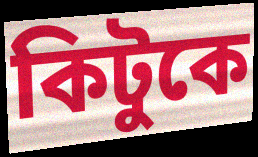
কিটুকে